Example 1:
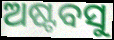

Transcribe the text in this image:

ଅଷ୍ଟବସୁ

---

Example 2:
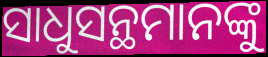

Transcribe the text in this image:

ସାଧୁସନ୍ଥମାନଙ୍କୁ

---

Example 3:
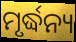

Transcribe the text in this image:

ମୃର୍ଦ୍ଧନ୍ୟ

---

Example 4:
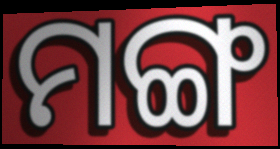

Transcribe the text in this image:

ମଙ୍ଗ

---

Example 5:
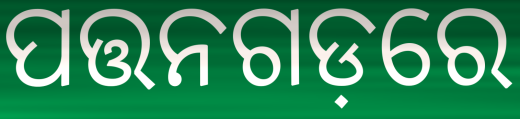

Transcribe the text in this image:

ପତ୍ତନଗଡ଼ରେ